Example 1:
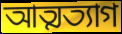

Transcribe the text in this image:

আত্মত্যাগ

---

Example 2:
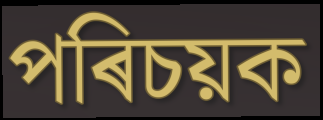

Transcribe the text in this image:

পৰিচয়ক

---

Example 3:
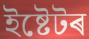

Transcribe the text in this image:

ইষ্টেটৰ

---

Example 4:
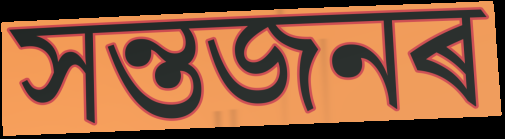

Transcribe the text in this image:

সন্তজনৰ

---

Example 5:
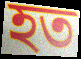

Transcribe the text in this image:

হত